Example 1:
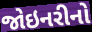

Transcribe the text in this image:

જોઇનરીનો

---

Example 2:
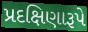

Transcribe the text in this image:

પ્રદક્ષિણારૂપે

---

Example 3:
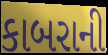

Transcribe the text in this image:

કાબરાની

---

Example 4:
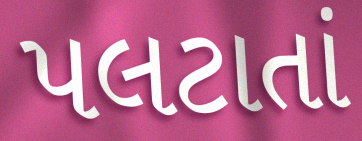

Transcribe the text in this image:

પલટાતાં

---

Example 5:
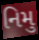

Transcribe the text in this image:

નિમુ